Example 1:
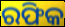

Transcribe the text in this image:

ରଫିକ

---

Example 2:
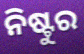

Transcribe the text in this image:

ନିଷ୍ଟୁର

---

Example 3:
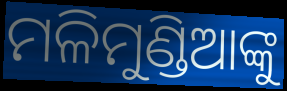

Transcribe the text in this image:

ମଳିମୁଣ୍ଡିଆଙ୍କୁ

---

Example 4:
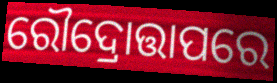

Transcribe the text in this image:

ରୌଦ୍ରୋତ୍ତାପରେ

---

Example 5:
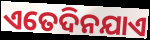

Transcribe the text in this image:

ଏତେଦିନଯାଏ